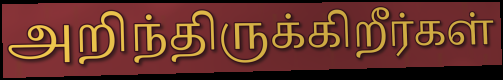
அறிந்திருக்கிறீர்கள்